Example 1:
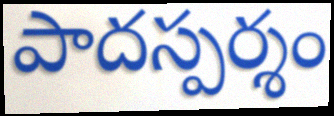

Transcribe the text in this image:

పాదస్పర్శం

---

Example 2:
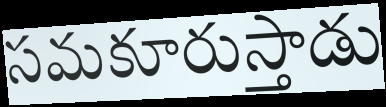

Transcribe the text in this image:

సమకూరుస్తాడు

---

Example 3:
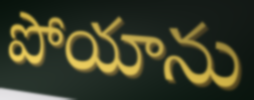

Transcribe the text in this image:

పోయాను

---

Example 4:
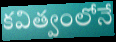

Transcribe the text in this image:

కవిత్వంలోనే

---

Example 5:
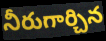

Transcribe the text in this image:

నీరుగార్చిన